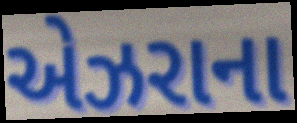
એઝરાના